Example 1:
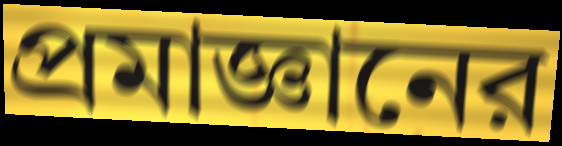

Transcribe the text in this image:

প্রমাজ্ঞানের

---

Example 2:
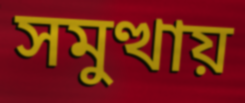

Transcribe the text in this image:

সমুত্থায়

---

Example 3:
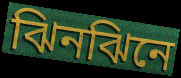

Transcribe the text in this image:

ঝিনঝিনে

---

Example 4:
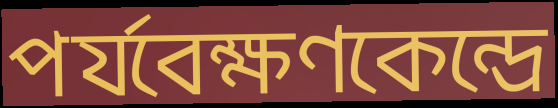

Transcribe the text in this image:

পর্যবেক্ষণকেন্দ্রে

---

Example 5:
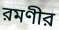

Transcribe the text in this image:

রমণীর